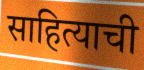
साहित्याची